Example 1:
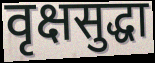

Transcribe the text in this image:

वृक्षसुद्धा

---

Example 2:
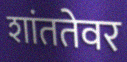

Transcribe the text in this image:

शांततेवर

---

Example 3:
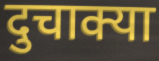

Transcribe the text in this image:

दुचाक्या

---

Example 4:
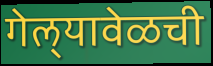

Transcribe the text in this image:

गेल्यावेळची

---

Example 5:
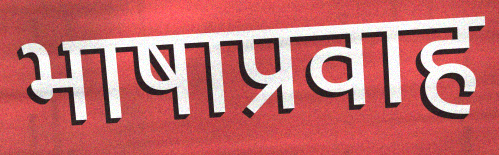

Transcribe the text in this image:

भाषाप्रवाह